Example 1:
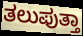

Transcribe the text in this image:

ತಲುಪುತ್ತಾ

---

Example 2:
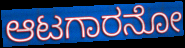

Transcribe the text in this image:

ಆಟಗಾರನೋ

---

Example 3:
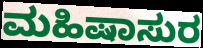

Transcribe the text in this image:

ಮಹಿಷಾಸುರ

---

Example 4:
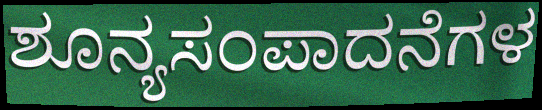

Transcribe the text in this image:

ಶೂನ್ಯಸಂಪಾದನೆಗಳ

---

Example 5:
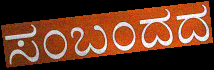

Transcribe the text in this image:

ಸಂಬಂದದ